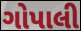
ગોપાલી